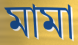
মামা